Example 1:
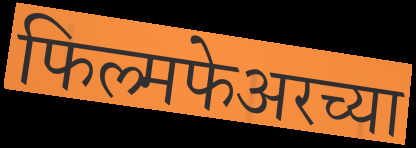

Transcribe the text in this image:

फिल्मफेअरच्या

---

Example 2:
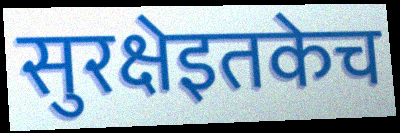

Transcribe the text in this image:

सुरक्षेइतकेच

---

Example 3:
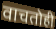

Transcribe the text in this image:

वाचतोही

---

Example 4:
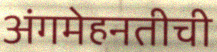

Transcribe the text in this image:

अंगमेहनतीची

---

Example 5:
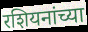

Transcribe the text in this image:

रशियनांच्या